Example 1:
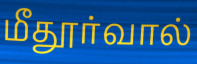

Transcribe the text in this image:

மீதூர்வால்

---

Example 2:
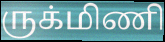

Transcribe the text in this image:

ருக்மிணி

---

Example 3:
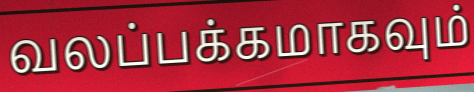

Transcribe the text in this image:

வலப்பக்கமாகவும்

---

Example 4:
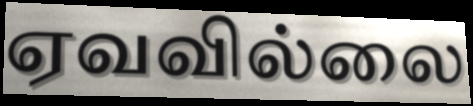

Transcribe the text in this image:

ஏவவில்லை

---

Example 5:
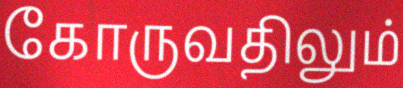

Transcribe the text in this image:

கோருவதிலும்